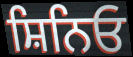
ਸ਼ਿਨਿਓ